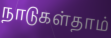
நாடுகள்தாம்